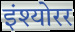
इंश्योरर